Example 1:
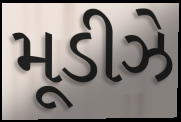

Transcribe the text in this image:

મૂડીઝે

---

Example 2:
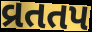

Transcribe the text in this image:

વ્રતતપ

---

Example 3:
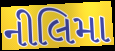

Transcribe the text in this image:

નીલિમા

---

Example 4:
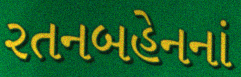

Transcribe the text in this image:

રતનબહેનનાં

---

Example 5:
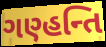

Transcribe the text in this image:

ગણ્હન્તિ